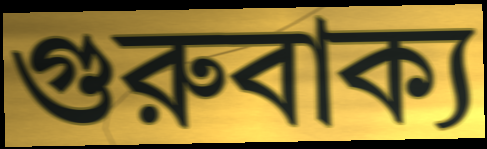
গুরুবাক্য